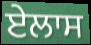
ਏਲਾਸ